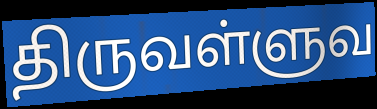
திருவள்ளுவ